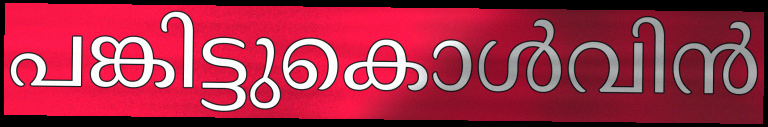
പങ്കിട്ടുകൊൾവിൻ